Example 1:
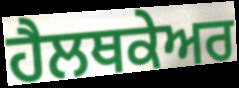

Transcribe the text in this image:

ਹੈਲਥਕੇਅਰ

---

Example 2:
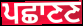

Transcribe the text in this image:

ਪਛਾਣਣ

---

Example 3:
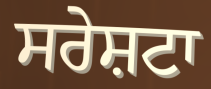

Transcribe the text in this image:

ਸਰੇਸ਼ਟਾ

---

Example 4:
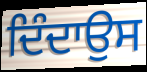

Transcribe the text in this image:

ਦਿੰਦਾਉਸ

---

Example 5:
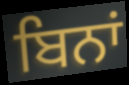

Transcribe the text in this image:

ਬਿਨਾਂ